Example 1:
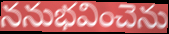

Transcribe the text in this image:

ననుభవించెను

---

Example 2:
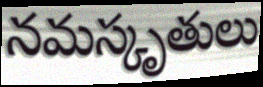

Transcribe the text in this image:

నమస్కృతులు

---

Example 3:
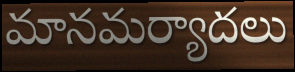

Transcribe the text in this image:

మానమర్యాదలు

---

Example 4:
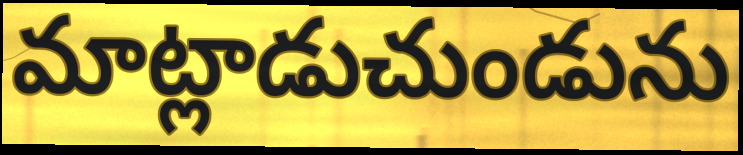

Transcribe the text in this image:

మాట్లాడుచుండును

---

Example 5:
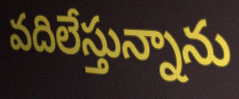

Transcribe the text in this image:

వదిలేస్తున్నాను